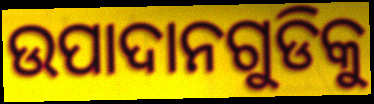
ଉପାଦାନଗୁଡିକୁ